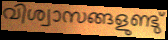
വിശ്വാസങ്ങളുണ്ടു്